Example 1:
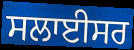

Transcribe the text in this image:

ਸਲਾਈਸਰ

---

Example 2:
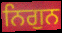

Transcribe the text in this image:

ਨਿਗੁਨ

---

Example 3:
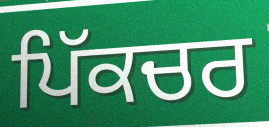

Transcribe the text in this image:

ਪਿੱਕਚਰ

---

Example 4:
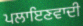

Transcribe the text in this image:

ਪਲਾਇਣਵਾਦੀ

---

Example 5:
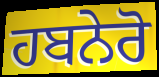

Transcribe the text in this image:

ਹਬਨੇਰੋ